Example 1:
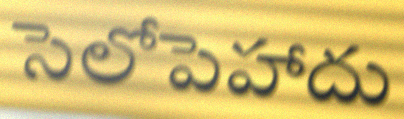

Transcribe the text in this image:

సెలోపెహాదు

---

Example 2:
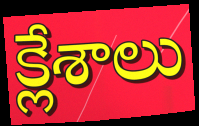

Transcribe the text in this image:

క్లేశాలు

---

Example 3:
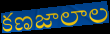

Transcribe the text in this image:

కణజాలాల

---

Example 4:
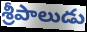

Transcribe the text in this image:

శ్రీపాలుడు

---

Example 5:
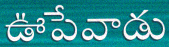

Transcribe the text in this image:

ఊపేవాడు